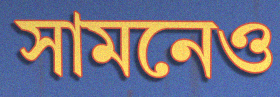
সামনেও